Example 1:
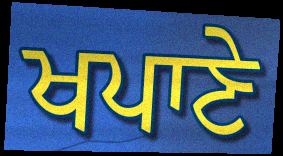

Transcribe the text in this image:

ਖਪਾਣੇ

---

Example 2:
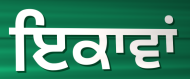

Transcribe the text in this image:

ਇਕਾਵਾਂ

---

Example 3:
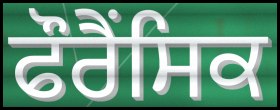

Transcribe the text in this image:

ਫੌਰੈਂਸਿਕ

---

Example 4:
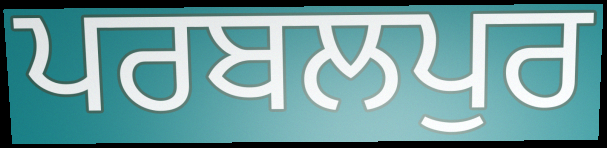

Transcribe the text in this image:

ਪਰਬਲਪੁਰ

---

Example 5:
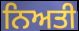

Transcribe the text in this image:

ਨਿਅਤੀ